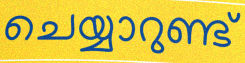
ചെയ്യാറുണ്ട്